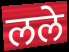
लले